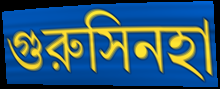
গুরুসিনহা